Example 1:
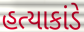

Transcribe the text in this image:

હત્યાકાંડે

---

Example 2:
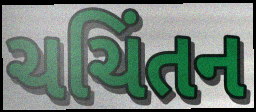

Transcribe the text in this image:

ચચિંતન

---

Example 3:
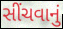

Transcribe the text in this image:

સીંચવાનું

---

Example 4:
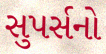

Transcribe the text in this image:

સુપર્સનો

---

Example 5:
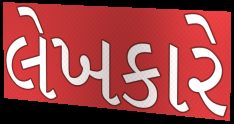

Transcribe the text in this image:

લેખકારે